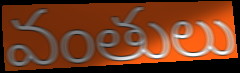
వంతులు